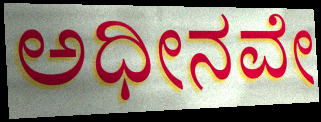
ಅಧೀನವೇ